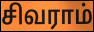
சிவராம்